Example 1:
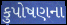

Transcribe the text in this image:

કુપોષણના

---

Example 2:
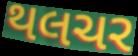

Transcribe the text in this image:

થલચર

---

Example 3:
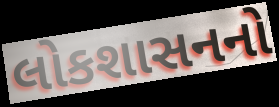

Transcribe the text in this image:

લોકશાસનનો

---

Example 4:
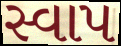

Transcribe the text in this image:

સ્વાપ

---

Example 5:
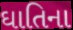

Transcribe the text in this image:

ઘાતિના